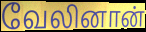
வேலினான்